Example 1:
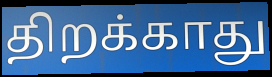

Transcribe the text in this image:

திறக்காது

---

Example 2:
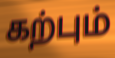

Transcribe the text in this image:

கற்பும்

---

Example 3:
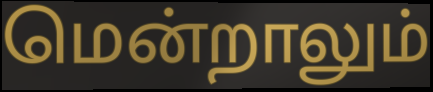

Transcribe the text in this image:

மென்றாலும்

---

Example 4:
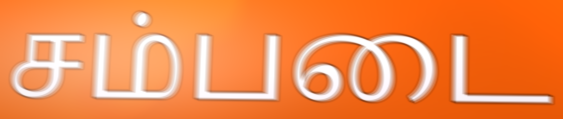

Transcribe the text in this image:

சம்படை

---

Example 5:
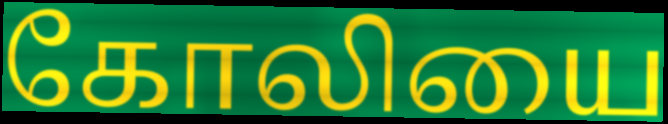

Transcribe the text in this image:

கோலியை